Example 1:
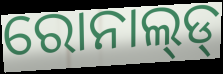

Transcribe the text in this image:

ରୋନାଲ୍‌ଡ୍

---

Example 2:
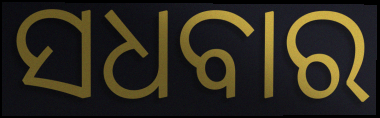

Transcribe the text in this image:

ସଧବାର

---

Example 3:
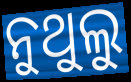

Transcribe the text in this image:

ନୁଥୁଲୁ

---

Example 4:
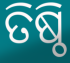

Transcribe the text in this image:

ତିଷ୍ଠି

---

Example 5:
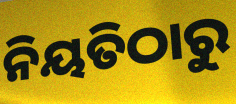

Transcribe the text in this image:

ନିୟତିଠାରୁ